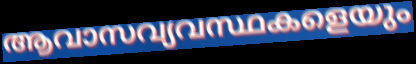
ആവാസവ്യവസ്ഥകളെയും